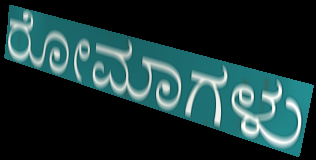
ರೋಮಾಗಳು